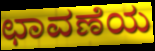
ಛಾವಣೆಯ